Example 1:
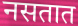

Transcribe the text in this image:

नसतात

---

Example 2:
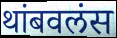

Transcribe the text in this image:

थांबवलंस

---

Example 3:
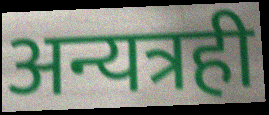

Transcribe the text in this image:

अन्यत्रही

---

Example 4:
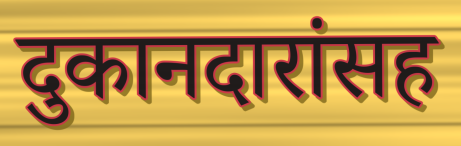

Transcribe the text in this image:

दुकानदारांसह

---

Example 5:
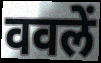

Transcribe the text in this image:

ववलें